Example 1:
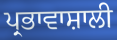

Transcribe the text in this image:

ਪ੍ਰਭਾਵਾਸ਼ਾਲੀ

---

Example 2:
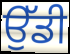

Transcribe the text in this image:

ਉੱਡੀ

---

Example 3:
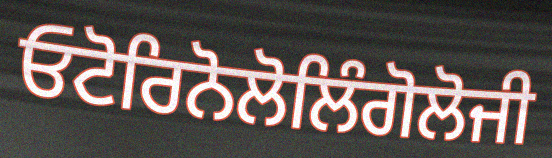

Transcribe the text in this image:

ਓਟੋਰਿਨੋਲੋਲਿੰਗੋਲੋਜੀ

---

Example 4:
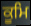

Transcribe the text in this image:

ਕੂਮਿ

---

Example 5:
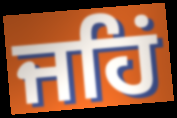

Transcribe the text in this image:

ਜਹਿਂ